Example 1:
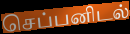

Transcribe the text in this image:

செப்பனிடல்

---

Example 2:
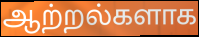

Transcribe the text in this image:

ஆற்றல்களாக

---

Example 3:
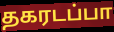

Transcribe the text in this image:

தகரடப்பா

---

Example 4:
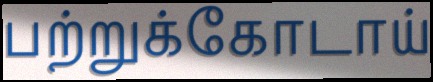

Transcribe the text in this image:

பற்றுக்கோடாய்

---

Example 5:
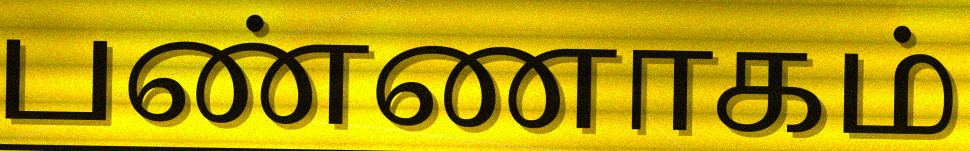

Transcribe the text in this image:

பண்ணாகம்